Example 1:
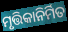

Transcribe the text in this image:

ମୃତ୍ତିକାନିର୍ମିତ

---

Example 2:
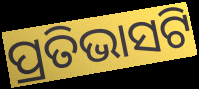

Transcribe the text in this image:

ପ୍ରତିଭାସଟି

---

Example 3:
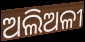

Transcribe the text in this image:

ଅଲିଅଳୀ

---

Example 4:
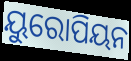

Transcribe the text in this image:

ୟୁରୋପିୟନ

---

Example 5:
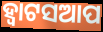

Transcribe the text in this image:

ହ୍ୱାଟସଆପ